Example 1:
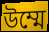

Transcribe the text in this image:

উম্মে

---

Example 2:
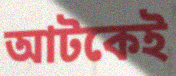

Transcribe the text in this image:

আটকেই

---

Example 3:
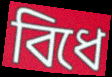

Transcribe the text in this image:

বিধে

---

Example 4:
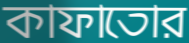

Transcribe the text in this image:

কাফাতোর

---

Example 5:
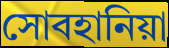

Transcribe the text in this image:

সোবহানিয়া